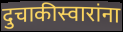
दुचाकीस्वारांना